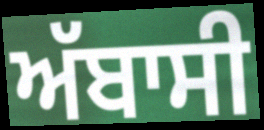
ਅੱਬਾਸੀ